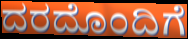
ದರದೊಂದಿಗೆ